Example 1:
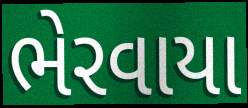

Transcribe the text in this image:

ભેરવાયા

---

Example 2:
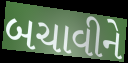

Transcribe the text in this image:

બચાવીને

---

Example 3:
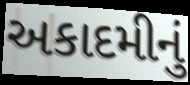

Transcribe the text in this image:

અકાદમીનું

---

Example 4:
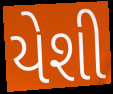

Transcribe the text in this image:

યેશી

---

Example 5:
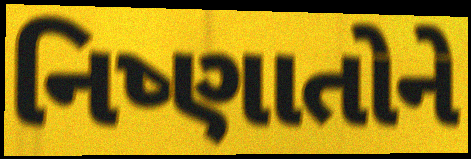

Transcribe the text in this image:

નિષ્ણાતોને